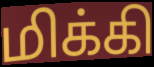
மிக்கி